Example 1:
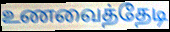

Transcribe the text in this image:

உணவைத்தேடி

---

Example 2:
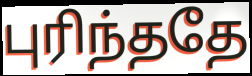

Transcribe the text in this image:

புரிந்ததே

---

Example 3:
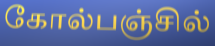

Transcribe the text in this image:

கோல்பஞ்சில்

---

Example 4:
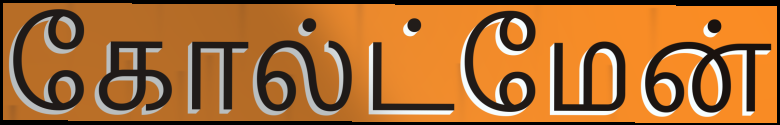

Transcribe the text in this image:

கோல்ட்மேன்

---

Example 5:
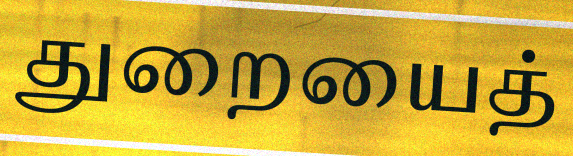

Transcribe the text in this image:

துறையைத்